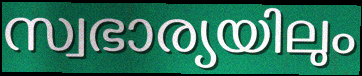
സ്വഭാര്യയിലും